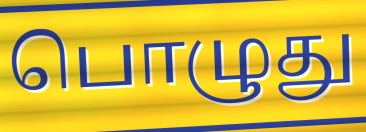
பொழுது